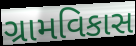
ગ્રામવિકાસ